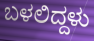
ಬಳಲಿದ್ದಳು